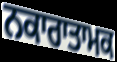
ਨਕਾਰਾਤਾਮਕ